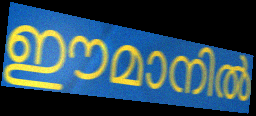
ഈമാനിൽ